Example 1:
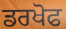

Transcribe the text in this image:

ਡਰਖੋਫ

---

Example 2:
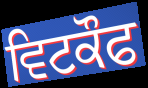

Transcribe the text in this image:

ਵਿਟਕੌਫ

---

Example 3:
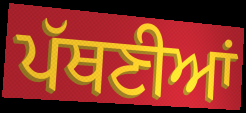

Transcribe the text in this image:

ਪੱਥਣੀਆਂ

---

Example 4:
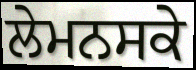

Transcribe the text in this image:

ਲੇਮਨਸਕੇ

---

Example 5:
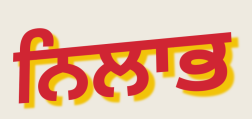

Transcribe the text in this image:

ਨਿਲਾਭ